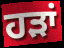
ਹੜਾਂ